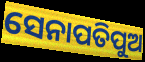
ସେନାପତିପୁଅ